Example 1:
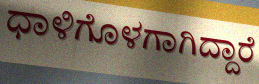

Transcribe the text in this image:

ಧಾಳಿಗೊಳಗಾಗಿದ್ದಾರೆ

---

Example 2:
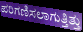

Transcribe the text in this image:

ಪರಿಗಣಿಸಲಾಗುತ್ತಿತ್ತು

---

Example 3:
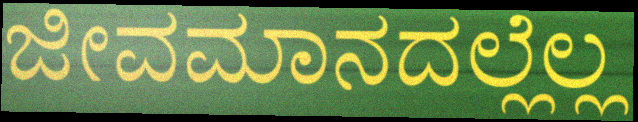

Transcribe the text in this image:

ಜೀವಮಾನದಲ್ಲೆಲ್ಲ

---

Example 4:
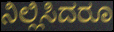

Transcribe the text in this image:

ನಿಲ್ಲಿಸಿದರೂ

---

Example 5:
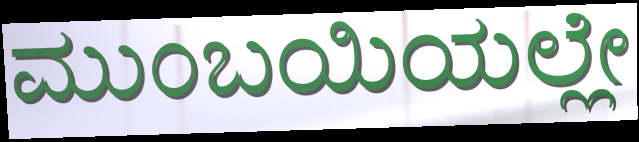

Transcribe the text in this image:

ಮುಂಬಯಿಯಲ್ಲೇ